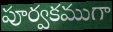
పూర్వకముగా